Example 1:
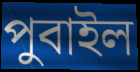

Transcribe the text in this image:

পুবাইল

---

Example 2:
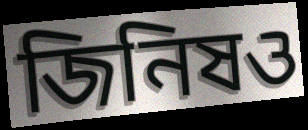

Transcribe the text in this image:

জিনিষও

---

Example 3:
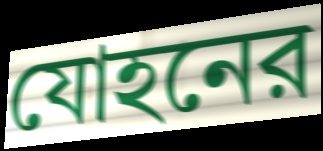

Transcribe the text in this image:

যোহনের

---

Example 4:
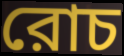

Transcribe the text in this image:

রোচ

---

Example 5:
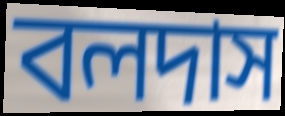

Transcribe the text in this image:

বলদাস